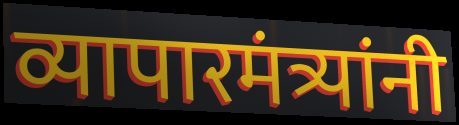
व्यापारमंत्र्यांनी